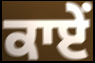
ਕਾਏਂ